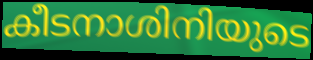
കീടനാശിനിയുടെ